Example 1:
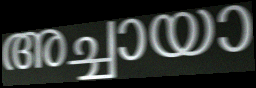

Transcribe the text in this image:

അച്ചായാ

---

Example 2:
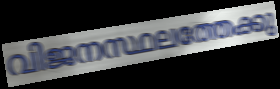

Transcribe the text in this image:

വിജനസ്ഥലത്തേക്കു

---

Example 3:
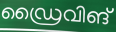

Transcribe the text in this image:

ഡ്രൈവിങ്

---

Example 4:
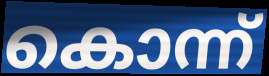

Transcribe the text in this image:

കൊന്ന്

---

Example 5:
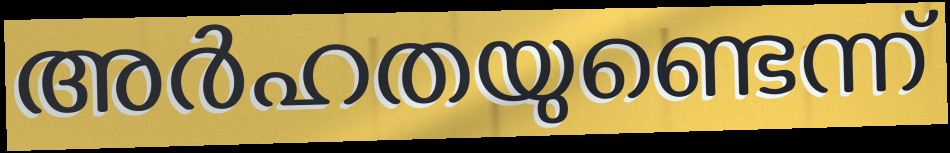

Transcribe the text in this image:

അർഹതയുണ്ടെന്ന്